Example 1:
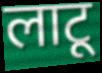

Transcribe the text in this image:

लाटू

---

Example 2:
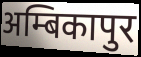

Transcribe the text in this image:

अम्बिकापुर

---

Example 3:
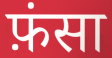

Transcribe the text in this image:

फ़ंसा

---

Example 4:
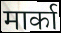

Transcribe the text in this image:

मार्का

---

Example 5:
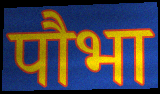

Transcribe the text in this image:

पौभा